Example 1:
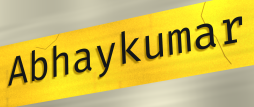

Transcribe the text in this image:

Abhaykumar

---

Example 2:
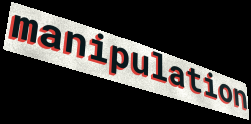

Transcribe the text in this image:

manipulation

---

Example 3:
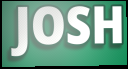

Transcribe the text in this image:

JOSH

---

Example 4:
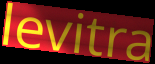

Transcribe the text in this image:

levitra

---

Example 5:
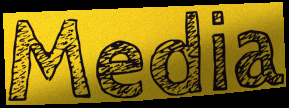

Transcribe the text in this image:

Media